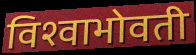
विश्वाभोवती